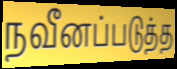
நவீனப்படுத்த